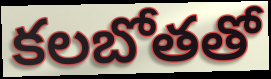
కలబోతతో